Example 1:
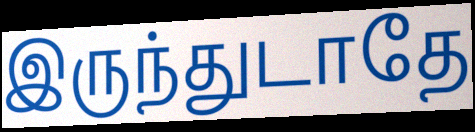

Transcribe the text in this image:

இருந்துடாதே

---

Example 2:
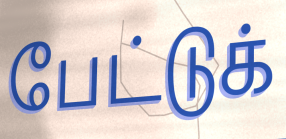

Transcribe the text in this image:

பேட்டுக்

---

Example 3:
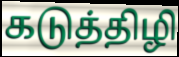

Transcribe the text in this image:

கடுத்திழி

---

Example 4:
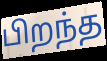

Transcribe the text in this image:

பிறந்த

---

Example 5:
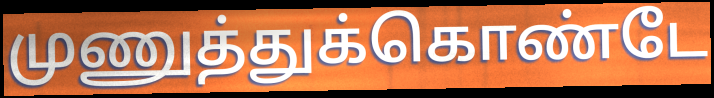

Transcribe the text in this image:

முணுத்துக்கொண்டே